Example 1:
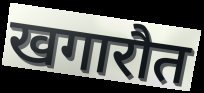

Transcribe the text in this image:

खगारौत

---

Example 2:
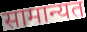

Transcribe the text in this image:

सामान्यत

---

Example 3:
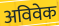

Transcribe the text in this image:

अविवेक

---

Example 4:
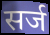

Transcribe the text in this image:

सर्ज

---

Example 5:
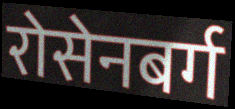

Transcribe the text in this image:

रोसेनबर्ग